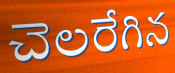
చెలరేగిన